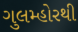
ગુલમ્હોરથી